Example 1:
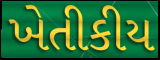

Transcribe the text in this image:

ખેતીકીય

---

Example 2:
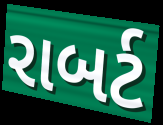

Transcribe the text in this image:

રાબર્ટ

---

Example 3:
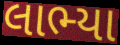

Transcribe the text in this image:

લાભ્યા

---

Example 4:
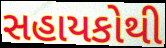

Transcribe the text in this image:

સહાયકોથી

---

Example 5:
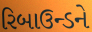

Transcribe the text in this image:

રિબાઉન્ડને